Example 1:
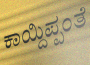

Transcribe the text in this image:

ಕಾಯ್ದಿಪ್ಪಂತೆ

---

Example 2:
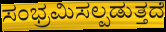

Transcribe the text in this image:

ಸಂಭ್ರಮಿಸಲ್ಪಡುತ್ತದೆ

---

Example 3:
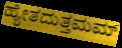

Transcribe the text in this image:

ಹ್ಯೇತದುತ್ತಮಮ್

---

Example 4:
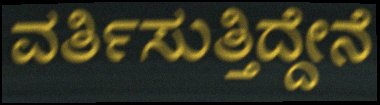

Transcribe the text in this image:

ವರ್ತಿಸುತ್ತಿದ್ದೇನೆ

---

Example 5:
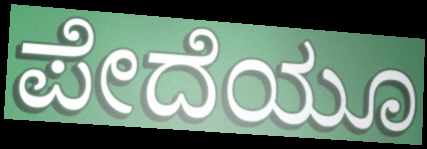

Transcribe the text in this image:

ಪೇದೆಯೂ